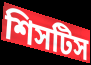
শিসটিস